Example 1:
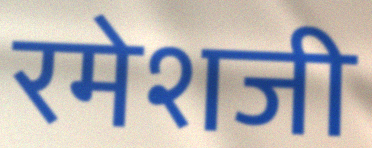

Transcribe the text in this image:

रमेशजी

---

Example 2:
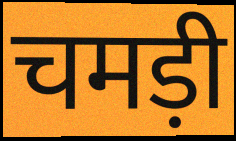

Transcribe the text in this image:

चमड़ी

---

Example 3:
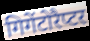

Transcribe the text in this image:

गिगेंटोरैप्टर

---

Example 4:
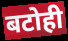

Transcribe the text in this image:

बटोही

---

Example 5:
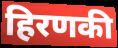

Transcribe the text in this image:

हिरणकी